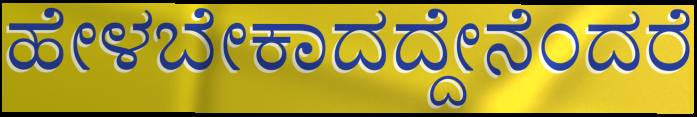
ಹೇಳಬೇಕಾದದ್ದೇನೆಂದರೆ